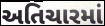
અતિચારમાં